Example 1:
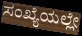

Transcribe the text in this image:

ಸಂಖ್ಯೆಯಲ್ಲೇ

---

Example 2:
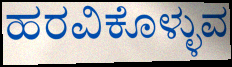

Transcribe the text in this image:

ಹರವಿಕೊಳ್ಳುವ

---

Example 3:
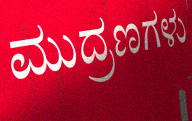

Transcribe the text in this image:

ಮುದ್ರಣಗಳು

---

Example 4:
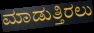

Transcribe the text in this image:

ಮಾಡುತ್ತಿರಲು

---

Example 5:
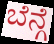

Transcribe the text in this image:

ಬೆನ್ಗೆ